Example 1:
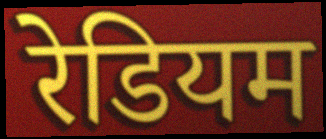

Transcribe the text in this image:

रेडियम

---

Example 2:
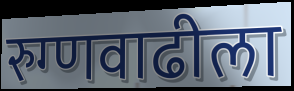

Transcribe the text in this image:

रुग्णवाढीला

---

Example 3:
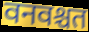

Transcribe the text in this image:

वनवश्चत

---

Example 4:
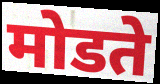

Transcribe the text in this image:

मोडते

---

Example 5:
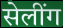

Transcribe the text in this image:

सेलींग